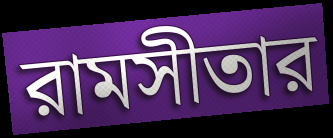
রামসীতার